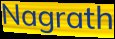
Nagrath